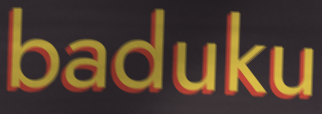
baduku